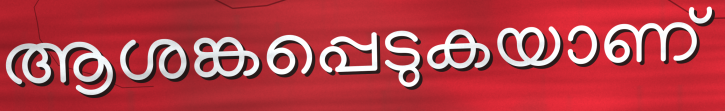
ആശങ്കപ്പെടുകയാണ്